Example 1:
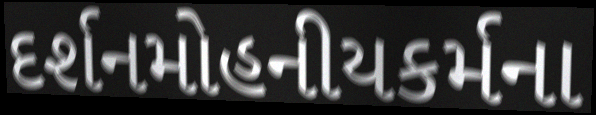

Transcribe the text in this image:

દર્શનમોહનીયકર્મના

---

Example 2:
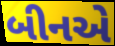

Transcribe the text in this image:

બીનએ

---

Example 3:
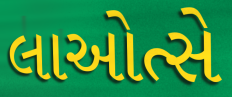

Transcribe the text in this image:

લાઓત્સે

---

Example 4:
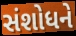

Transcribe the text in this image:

સંશોધને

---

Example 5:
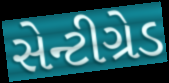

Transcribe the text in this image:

સેન્ટીગ્રેડ